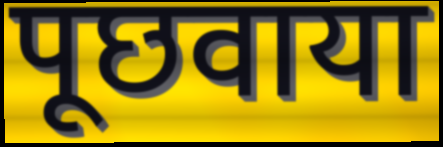
पूछवाया